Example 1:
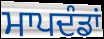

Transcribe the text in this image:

ਮਾਪਦੰਡਾਂ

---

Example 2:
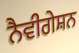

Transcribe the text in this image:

ਨੈਵੀਗੇਸ਼ਨ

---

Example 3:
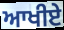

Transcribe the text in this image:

ਆਖੀਏ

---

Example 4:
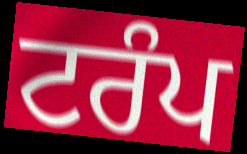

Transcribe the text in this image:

ਟਰੰਪ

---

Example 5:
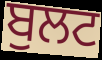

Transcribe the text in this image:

ਬੁਲਟ